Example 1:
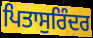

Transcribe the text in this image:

ਪਿਤਾਸੁਰਿੰਦਰ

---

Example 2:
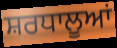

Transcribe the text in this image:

ਸ਼ਰਧਾਲੂਆਂ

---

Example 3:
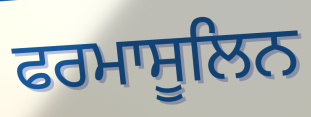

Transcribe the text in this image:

ਫਰਮਾਸੂਲਿਨ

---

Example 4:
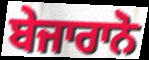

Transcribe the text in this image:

ਬੇਜਾਰਾਨੋ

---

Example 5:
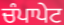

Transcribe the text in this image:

ਚੰਪਾਪੇਟ